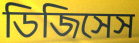
ডিজিসেস